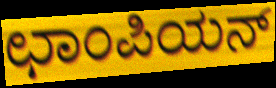
ಛಾಂಪಿಯನ್